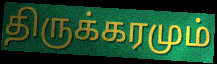
திருக்கரமும்